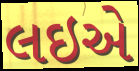
લઇએ